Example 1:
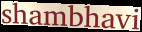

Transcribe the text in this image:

shambhavi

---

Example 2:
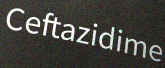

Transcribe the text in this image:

Ceftazidime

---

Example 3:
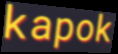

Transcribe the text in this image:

kapok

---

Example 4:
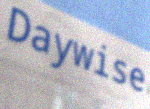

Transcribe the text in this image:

Daywise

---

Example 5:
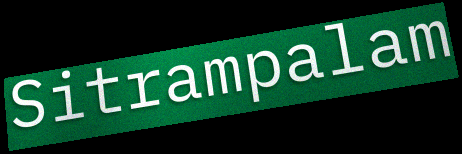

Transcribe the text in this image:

Sitrampalam